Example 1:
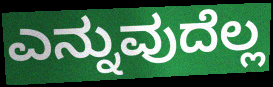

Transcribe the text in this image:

ಎನ್ನುವುದೆಲ್ಲ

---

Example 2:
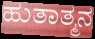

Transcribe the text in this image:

ಹುತಾತ್ಮನ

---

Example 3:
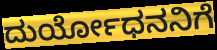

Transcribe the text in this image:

ದುರ್ಯೋಧನನಿಗೆ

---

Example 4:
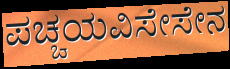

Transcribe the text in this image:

ಪಚ್ಚಯವಿಸೇಸೇನ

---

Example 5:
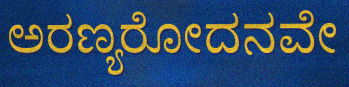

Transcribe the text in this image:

ಅರಣ್ಯರೋದನವೇ